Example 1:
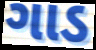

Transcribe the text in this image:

ગાડ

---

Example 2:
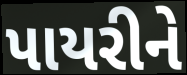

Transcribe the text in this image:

પાયરીને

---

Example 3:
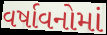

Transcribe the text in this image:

વર્ષાવનોમાં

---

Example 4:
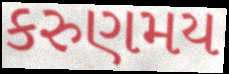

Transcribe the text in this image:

કરુણમય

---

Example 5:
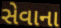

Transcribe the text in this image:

સેવાના